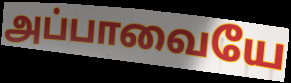
அப்பாவையே